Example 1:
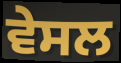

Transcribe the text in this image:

ਵੇਸਲ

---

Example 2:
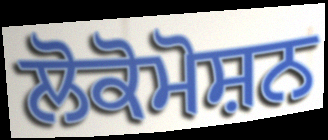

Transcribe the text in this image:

ਲੋਕੋਮੋਸ਼ਨ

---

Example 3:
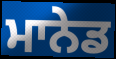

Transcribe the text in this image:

ਮਾਨੇਡ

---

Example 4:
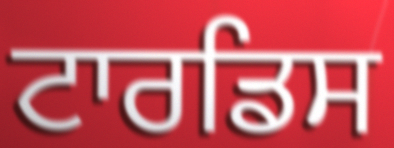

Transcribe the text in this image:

ਟਾਰਡਿਸ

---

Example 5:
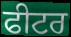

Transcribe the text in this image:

ਫੀਟਰ